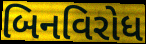
બિનવિરોધ